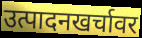
उत्पादनखर्चावर